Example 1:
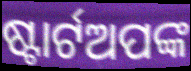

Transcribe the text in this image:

ଷ୍ଟାର୍ଟଅପଙ୍କ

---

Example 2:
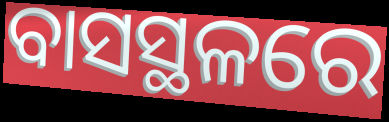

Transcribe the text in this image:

ବାସସ୍ଥଳରେ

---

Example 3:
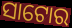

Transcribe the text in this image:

ସାଟୋର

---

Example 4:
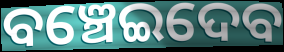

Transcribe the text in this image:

ବଞ୍ଚେଇଦେବ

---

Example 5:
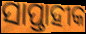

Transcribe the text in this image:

ସାପ୍ତାହୀକ